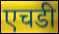
एचडी